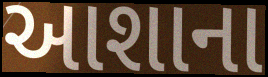
આશાના